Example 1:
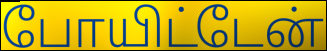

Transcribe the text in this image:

போயிட்டேன்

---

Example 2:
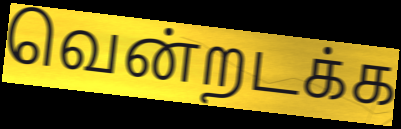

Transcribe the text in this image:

வென்றடக்க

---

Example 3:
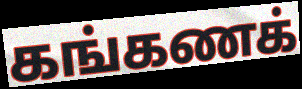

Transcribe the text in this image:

கங்கணக்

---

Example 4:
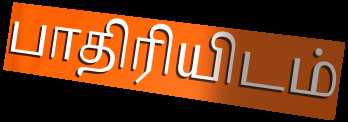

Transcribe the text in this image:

பாதிரியிடம்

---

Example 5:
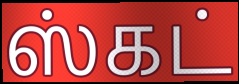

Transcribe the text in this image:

ஸ்கட்